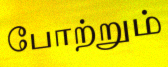
போற்றும்